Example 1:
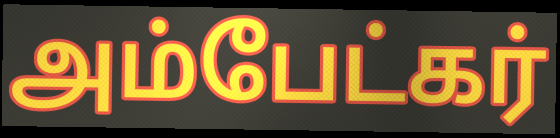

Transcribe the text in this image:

அம்பேட்கர்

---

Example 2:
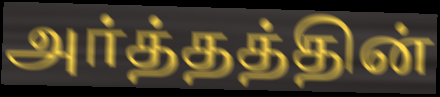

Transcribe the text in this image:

அர்த்தத்தின்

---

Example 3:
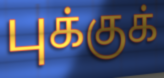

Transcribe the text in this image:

புக்குக்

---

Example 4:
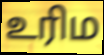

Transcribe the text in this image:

உரிம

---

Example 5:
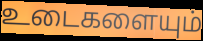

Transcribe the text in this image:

உடைகளையும்